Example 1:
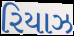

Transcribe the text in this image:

રિયાઝ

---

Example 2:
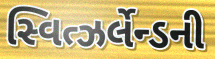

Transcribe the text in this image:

સ્વિત્ઝર્લેન્ડની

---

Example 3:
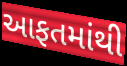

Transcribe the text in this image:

આફતમાંથી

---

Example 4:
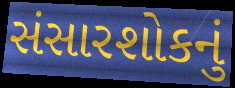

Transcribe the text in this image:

સંસારશોકનું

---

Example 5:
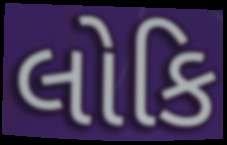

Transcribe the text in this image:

લોકિ